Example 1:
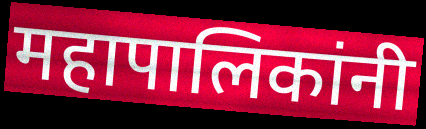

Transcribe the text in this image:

महापालिकांनी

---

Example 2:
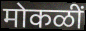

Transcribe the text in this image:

मोकळीं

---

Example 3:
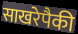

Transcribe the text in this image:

साखरेपैकी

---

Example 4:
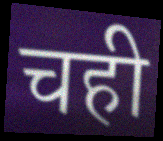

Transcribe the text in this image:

चही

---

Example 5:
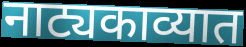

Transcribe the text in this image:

नाट्यकाव्यात